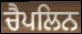
ਚੈਪਲਿਨ